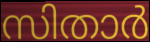
സിതാർ